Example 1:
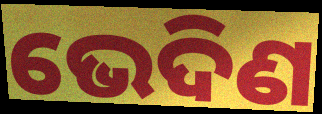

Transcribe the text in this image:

ଭେଦିଣ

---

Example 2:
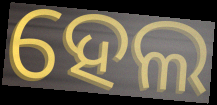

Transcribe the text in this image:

ହେଲ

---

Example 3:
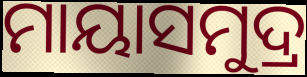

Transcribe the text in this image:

ମାୟାସମୁଦ୍ର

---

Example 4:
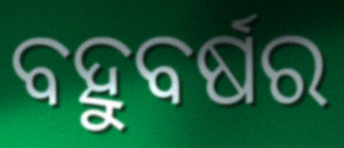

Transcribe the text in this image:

ବହୁବର୍ଷର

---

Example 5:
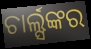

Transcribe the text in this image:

ଚାର୍ଲ୍ସଙ୍କର